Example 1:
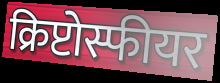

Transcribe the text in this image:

क्रिप्टोस्फीयर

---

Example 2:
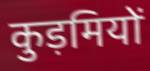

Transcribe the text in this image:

कुड़मियों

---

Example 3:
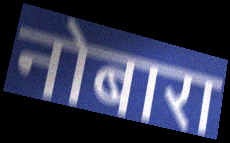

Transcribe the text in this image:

नोबारा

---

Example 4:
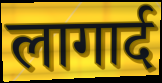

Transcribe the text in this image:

लागार्द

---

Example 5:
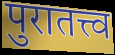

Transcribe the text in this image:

पुरातत्त्व